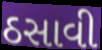
ઠસાવી